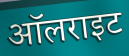
ऑलराइट